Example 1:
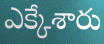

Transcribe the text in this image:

ఎక్కేశారు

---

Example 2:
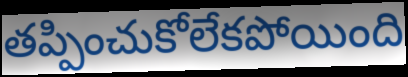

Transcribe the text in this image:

తప్పించుకోలేకపోయింది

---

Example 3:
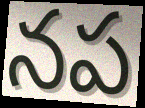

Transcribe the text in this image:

నప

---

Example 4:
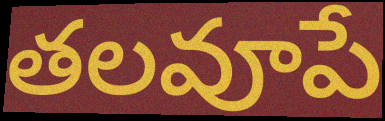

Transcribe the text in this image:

తలవూపే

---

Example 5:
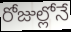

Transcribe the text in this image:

రోజుల్లోనే